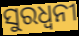
ସୁରଧ୍ୱନୀ